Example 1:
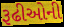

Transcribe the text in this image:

રૂઢીઓની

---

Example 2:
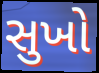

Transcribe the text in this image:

સુખો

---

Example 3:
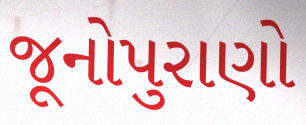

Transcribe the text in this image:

જૂનોપુરાણો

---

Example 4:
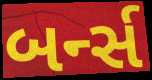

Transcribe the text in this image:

બર્ન્સ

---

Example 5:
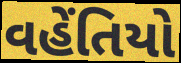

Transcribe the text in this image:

વહેંતિયો